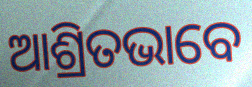
ଆଶ୍ରିତଭାବେ